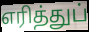
எரித்துப்